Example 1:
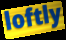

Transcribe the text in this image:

loftly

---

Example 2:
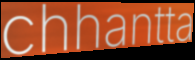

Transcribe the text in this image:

chhantta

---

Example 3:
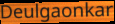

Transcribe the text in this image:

Deulgaonkar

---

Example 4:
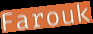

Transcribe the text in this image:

Farouk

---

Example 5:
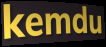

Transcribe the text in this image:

kemdu